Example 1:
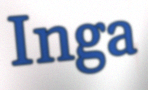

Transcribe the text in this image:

Inga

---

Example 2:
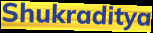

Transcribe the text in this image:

Shukraditya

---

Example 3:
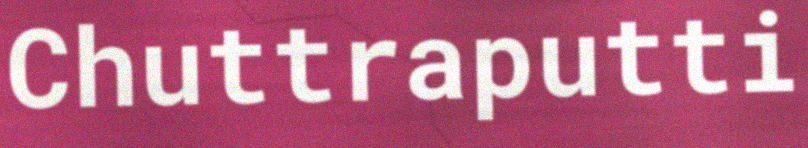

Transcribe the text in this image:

Chuttraputti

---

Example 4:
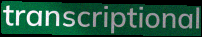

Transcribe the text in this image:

transcriptional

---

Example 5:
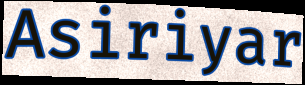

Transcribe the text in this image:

Asiriyar